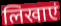
लिखाएं